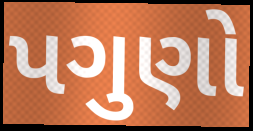
પગુણો